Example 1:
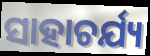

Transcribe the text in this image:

ସାହାଚର୍ଯ୍ୟ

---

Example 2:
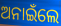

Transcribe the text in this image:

ଅନାଇଁଲେ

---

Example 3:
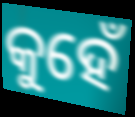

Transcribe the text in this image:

କୁହେଁ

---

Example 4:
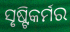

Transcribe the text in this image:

ସୃଷ୍ଟିକର୍ମର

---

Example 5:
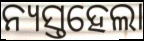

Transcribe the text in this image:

ନ୍ୟସ୍ତହେଲା